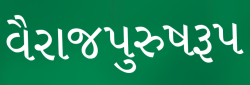
વૈરાજપુરુષરૂપ